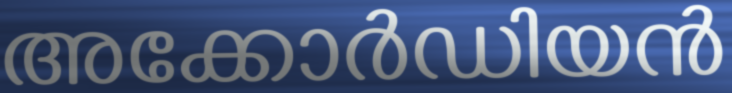
അക്കോർഡിയൻ